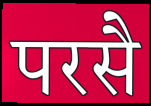
परसै